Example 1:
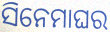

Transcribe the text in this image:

ସିନେମାଘର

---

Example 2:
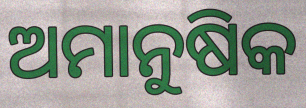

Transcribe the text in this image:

ଅମାନୁଷିକ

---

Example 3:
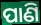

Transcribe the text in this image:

ପାଣି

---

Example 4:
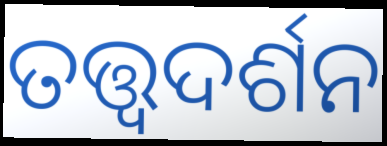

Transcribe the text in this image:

ତତ୍ତ୍ଵଦର୍ଶନ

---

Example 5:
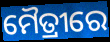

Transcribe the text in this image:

ମୈତ୍ରୀରେ